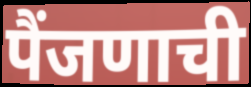
पैंजणाची